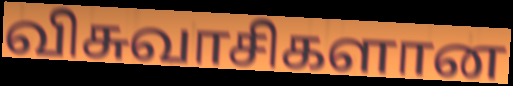
விசுவாசிகளான